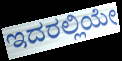
ಇದರಲ್ಲಿಯೇ